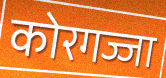
कोरगज्जा